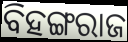
ବିହଙ୍ଗରାଜ